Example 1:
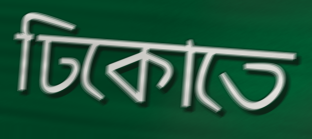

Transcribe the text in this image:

ঢিকোতে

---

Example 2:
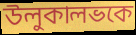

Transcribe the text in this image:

উলুকালভকে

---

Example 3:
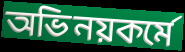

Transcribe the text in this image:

অভিনয়কর্মে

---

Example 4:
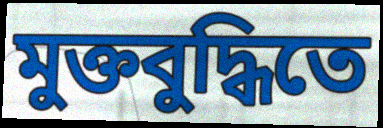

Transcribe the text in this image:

মুক্তবুদ্ধিতে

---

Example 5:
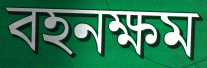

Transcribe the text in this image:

বহনক্ষম